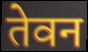
तेवन